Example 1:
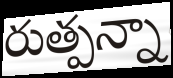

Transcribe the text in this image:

రుత్పన్నా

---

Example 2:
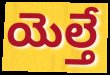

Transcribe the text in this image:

యెల్తే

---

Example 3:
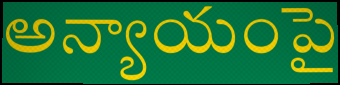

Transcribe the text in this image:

అన్యాయంపై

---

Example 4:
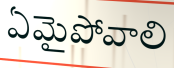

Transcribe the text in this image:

ఏమైపోవాలి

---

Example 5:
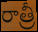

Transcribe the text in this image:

రాత్రీ